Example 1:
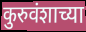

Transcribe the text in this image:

कुरुवंशाच्या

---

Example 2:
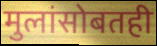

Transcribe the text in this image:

मुलांसोबतही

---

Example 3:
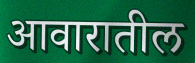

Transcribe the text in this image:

आवारातील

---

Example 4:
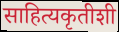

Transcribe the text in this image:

साहित्यकृतीशी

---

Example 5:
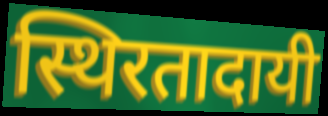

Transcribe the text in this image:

स्थिरतादायी